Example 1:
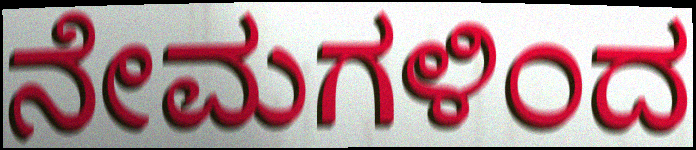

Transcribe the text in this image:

ನೇಮಗಳಿಂದ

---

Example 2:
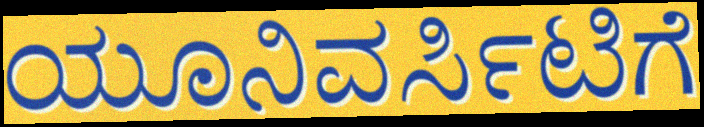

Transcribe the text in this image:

ಯೂನಿವರ್ಸಿಟಿಗೆ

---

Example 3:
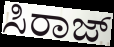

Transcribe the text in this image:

ಸಿರಾಜ್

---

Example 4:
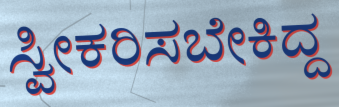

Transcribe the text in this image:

ಸ್ವೀಕರಿಸಬೇಕಿದ್ದ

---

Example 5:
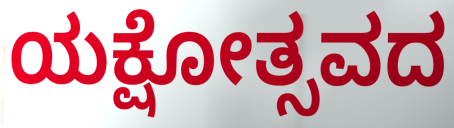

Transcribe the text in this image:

ಯಕ್ಷೋತ್ಸವದ